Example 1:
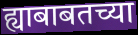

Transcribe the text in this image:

ह्याबाबतच्या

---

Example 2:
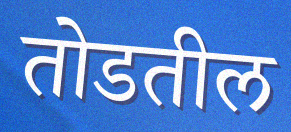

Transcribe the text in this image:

तोडतील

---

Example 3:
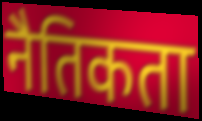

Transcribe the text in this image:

नैतिकता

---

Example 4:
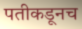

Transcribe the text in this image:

पतीकडूनच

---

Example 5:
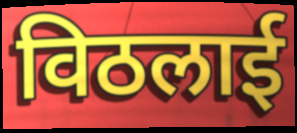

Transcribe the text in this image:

विठलाई